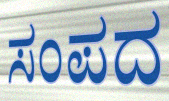
ಸಂಪದ